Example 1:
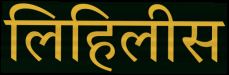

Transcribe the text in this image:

लिहिलीस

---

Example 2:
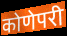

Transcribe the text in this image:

कोणेपरी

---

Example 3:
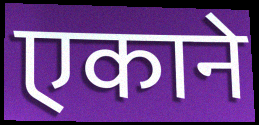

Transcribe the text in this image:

एकाने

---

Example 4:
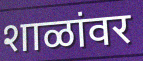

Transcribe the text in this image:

शाळांवर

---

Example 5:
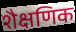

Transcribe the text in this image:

शैक्षणिक